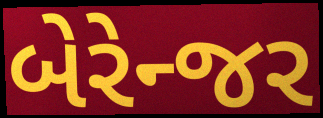
બેરેન્જર